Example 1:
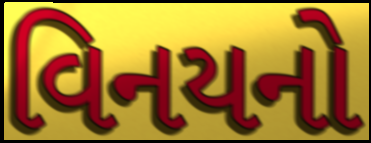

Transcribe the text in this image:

વિનયનો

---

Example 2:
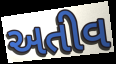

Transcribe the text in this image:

અતીવ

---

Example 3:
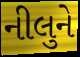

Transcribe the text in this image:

નીલુને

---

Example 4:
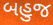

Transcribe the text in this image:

બહુજ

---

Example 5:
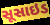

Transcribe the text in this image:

સૂસાઇડ